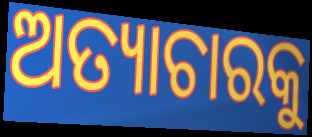
ଅତ୍ୟାଚାରକୁ